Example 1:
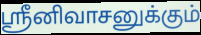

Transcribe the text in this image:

ஸ்ரீனிவாசனுக்கும்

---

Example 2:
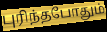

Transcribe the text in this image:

புரிந்தபோதும்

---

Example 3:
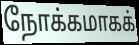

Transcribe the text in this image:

நோக்கமாகக்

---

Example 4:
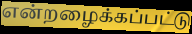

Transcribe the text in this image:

என்றழைக்கப்பட்டு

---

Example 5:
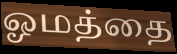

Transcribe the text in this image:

ஓமத்தை